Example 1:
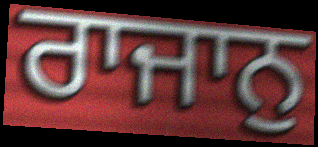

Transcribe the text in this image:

ਰਾਜਾਨੁ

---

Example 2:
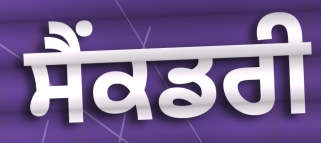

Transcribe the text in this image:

ਸੈਂਕਡਰੀ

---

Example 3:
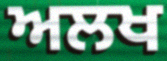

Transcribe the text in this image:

ਅਲਖ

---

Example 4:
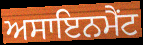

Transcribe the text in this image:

ਅਸਾਇਨਮੈਂਟ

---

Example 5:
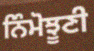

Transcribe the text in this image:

ਨਿੰਮੋਝੂਣੀ